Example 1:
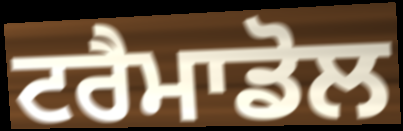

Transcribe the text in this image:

ਟਰੈਮਾਡੋਲ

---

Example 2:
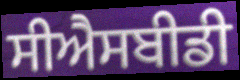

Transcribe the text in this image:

ਸੀਐਸਬੀਡੀ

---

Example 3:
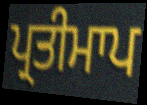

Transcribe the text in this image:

ਪ੍ਰਤੀਮਾਪ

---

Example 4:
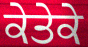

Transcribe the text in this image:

ਕੇਤੇਕੇ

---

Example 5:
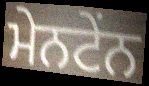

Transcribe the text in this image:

ਮੇਨਟੇਂਨ